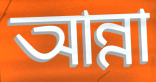
আন্না